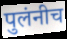
पुलंनीच